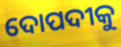
ଦୋପଦୀକୁ